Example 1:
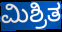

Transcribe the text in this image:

ಮಿಶ್ರಿತ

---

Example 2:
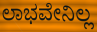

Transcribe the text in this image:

ಲಾಭವೇನಿಲ್ಲ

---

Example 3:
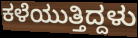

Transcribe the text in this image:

ಕಳೆಯುತ್ತಿದ್ದಳು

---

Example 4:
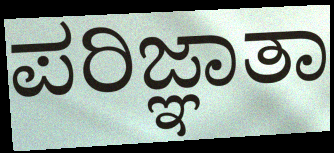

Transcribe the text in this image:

ಪರಿಜ್ಞಾತಾ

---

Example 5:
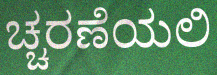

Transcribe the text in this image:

ಚ್ಚರಣೆಯಲಿ